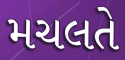
મચલતે